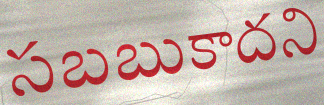
సబబుకాదని